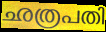
ഛത്രപതി